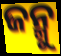
ଜନ୍ମୁ